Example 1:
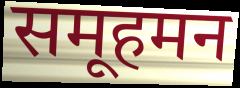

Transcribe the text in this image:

समूहमन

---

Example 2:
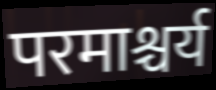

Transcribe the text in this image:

परमाश्चर्य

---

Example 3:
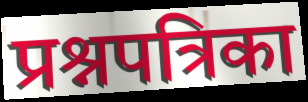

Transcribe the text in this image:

प्रश्नपत्रिका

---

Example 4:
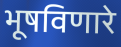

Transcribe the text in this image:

भूषविणारे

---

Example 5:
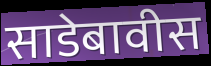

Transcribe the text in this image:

साडेबावीस